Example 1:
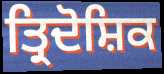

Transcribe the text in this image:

ਤ੍ਰਿਦੋਸ਼ਿਕ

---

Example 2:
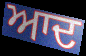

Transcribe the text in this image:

ਆਦ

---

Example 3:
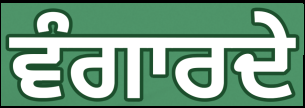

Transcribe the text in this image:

ਵੰਗਾਰਦੇ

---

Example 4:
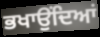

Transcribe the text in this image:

ਭਖਾਉਂਦਿਆਂ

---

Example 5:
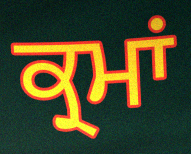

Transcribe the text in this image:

ਕ੍ਰਮਾਂ